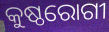
କୁଷ୍ଠରୋଗୀ